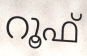
റൂഫ്